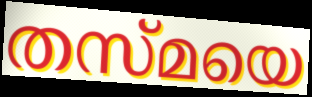
തസ്മയെ